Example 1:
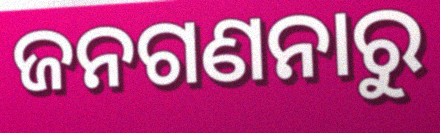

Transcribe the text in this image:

ଜନଗଣନାରୁ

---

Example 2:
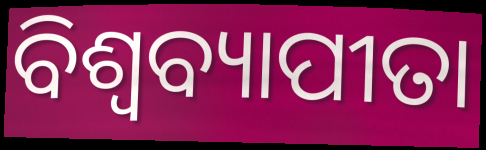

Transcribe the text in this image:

ବିଶ୍ୱବ୍ୟାପୀତା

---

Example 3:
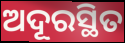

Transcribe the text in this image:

ଅଦୂରସ୍ଥିତ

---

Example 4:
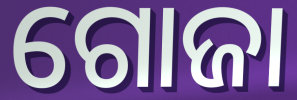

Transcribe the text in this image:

ଗୋଜା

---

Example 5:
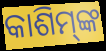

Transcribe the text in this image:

କାଶିମ୍‍ଙ୍କ